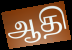
ஆதி